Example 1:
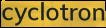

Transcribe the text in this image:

cyclotron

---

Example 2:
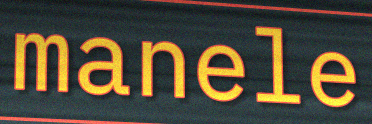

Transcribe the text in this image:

manele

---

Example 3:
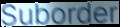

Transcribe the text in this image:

Suborder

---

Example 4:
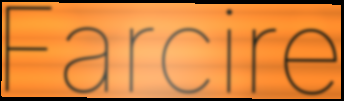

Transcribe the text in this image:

Farcire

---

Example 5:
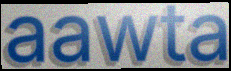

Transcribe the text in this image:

aawta